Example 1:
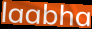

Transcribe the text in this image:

laabha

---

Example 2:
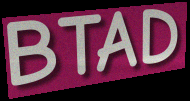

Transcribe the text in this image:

BTAD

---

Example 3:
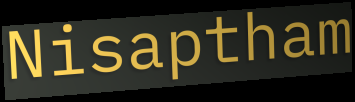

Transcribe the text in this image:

Nisaptham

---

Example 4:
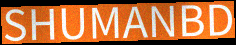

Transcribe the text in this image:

SHUMANBD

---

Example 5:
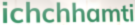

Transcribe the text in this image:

ichchhamti